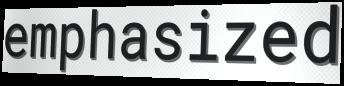
emphasized